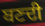
ਬਣਦੀ